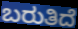
ಬರುತಿದೆ